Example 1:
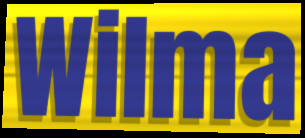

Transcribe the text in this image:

Wilma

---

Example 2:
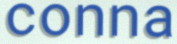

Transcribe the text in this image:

conna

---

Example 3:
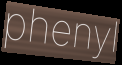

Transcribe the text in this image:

phenyl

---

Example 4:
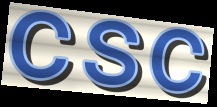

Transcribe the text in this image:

csc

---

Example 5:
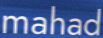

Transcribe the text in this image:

mahad